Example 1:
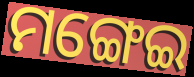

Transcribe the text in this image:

ମଙ୍ଗେଇ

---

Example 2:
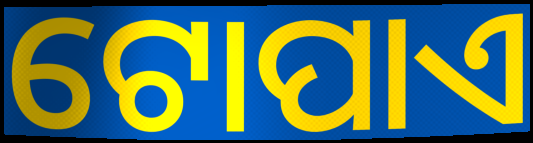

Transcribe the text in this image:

ଟୋପାଏ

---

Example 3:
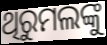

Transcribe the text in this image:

ଥିରୁମଲଙ୍କୁ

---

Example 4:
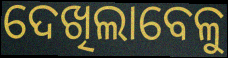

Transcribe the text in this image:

ଦେଖିଲାବେଳୁ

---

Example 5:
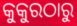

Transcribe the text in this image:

କୁକୁରଠାରୁ